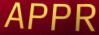
APPR